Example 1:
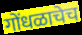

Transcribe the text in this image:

गोंधळाचेच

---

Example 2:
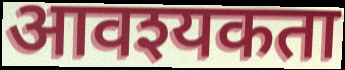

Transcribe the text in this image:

आवश्यकता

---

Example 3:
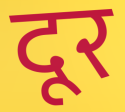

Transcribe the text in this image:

दूर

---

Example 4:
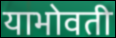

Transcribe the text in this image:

याभोवती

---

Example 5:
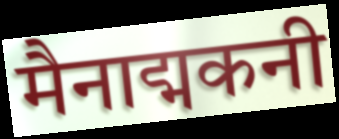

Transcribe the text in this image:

मैनाद्मकनी